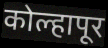
कोल्हापूर